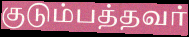
குடும்பத்தவர்